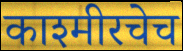
काश्मीरचेच